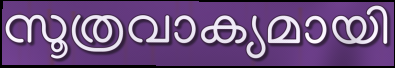
സൂത്രവാക്യമായി